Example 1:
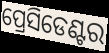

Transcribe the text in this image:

ପ୍ରେସିଡେଣ୍ଟର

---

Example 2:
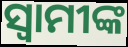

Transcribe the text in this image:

ସ୍ବାମୀଙ୍କ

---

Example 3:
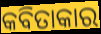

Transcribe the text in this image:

କବିତାକାର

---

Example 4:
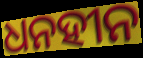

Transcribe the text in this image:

ଧନହୀନ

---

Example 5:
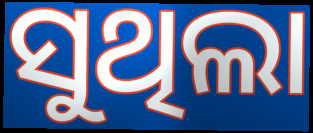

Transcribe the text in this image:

ସୁଥିଲା